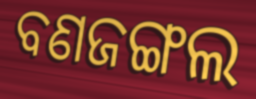
ବଣଜଙ୍ଗଲ